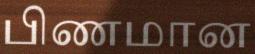
பிணமான